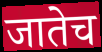
जातेच